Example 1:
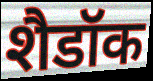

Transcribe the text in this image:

शैडॉक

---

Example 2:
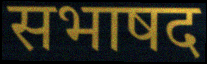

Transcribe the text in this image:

सभाषद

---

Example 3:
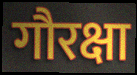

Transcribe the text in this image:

गौरक्षा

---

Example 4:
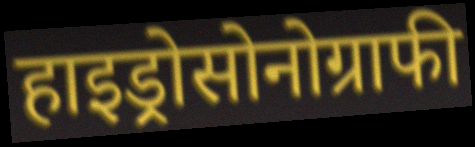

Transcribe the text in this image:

हाइड्रोसोनोग्राफी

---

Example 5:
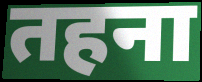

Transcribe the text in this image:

तहना